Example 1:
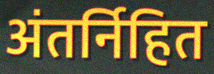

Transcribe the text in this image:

अंतर्निहित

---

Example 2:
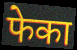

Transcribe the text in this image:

फेका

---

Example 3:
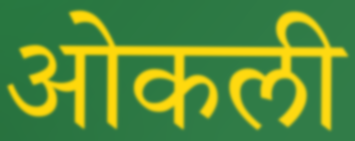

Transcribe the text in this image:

ओकली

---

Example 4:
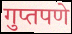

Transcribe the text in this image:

गुप्तपणे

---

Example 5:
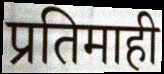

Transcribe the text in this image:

प्रतिमाही